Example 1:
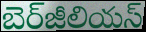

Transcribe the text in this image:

బెర్‌జీలియస్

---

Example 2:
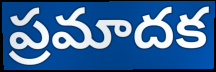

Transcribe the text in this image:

ప్రమాదక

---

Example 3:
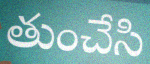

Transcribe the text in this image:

తుంచేసి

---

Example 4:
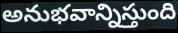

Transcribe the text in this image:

అనుభవాన్నిస్తుంది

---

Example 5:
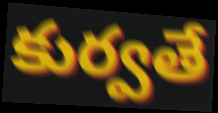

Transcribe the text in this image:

కుర్వతే